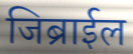
जिब्राईल